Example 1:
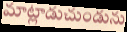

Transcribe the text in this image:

మాట్లాడుచుండును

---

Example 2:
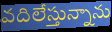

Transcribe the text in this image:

వదిలేస్తున్నాను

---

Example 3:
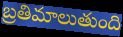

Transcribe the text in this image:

బ్రతిమాలుతుంది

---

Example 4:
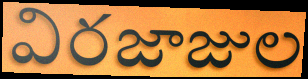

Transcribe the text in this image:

విరజాజుల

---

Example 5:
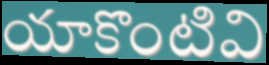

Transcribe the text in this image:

యాకొంటివి